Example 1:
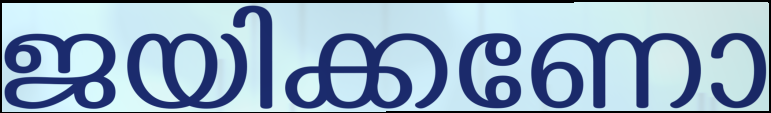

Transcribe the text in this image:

ജയിക്കണോ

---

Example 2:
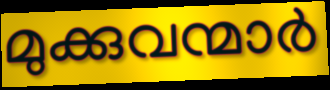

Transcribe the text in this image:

മുക്കുവന്മാർ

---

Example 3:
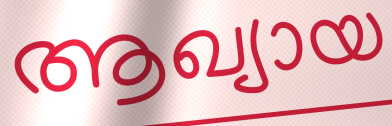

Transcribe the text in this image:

ആഖ്യായ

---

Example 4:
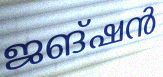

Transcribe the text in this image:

ജങ്ഷൻ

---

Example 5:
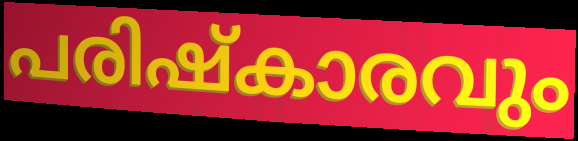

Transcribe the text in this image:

പരിഷ്കാരവും